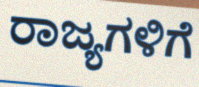
ರಾಜ್ಯಗಳಿಗೆ